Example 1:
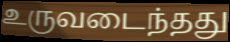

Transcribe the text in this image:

உருவடைந்தது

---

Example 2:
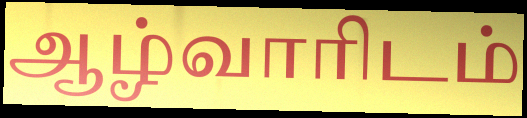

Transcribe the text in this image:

ஆழ்வாரிடம்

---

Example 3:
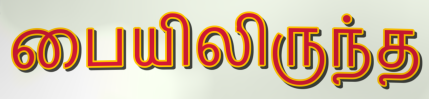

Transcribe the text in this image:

பையிலிருந்த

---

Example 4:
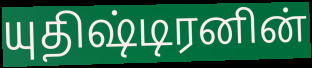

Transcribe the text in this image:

யுதிஷ்டிரனின்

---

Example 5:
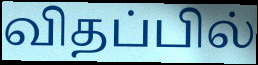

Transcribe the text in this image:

விதப்பில்